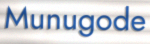
Munugode